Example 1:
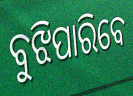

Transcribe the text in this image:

ବୁଝିପାରିବେ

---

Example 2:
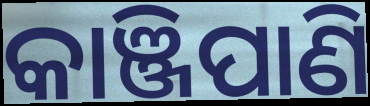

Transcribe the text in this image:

କାଞ୍ଜିପାଣି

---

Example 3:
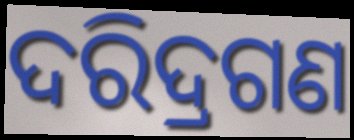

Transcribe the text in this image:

ଦରିଦ୍ରଗଣ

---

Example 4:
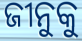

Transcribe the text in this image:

ଜୀନୁକୁ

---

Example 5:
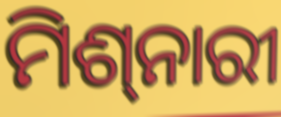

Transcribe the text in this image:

ମିଶ୍‍ନାରୀ